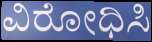
ವಿರೋಧಿಸಿ